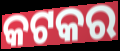
କଟକର